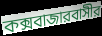
কক্সবাজারবাসীর